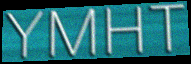
YMHT